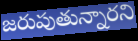
జరుపుతున్నారని